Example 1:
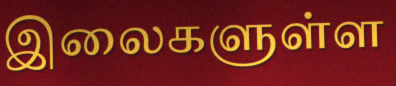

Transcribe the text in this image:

இலைகளுள்ள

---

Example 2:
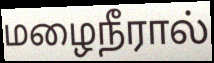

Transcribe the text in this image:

மழைநீரால்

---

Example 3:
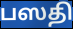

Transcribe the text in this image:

பஸதி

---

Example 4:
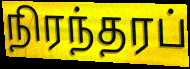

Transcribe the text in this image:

நிரந்தரப்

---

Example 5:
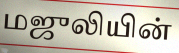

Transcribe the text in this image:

மஜுலியின்